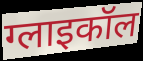
ग्लाइकॉल